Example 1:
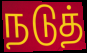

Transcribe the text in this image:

நடுத்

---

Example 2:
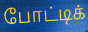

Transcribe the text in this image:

போட்டிக்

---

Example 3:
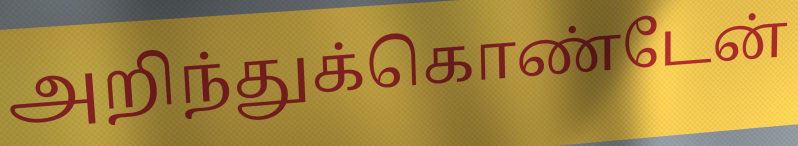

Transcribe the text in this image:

அறிந்துக்கொண்டேன்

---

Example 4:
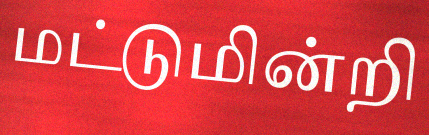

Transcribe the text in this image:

மட்டுமின்றி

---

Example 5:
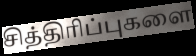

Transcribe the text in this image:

சித்திரிப்புகளை